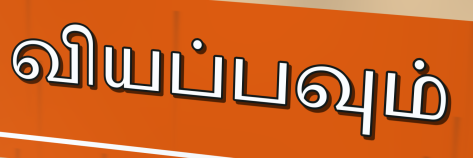
வியப்பவும்